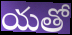
యతో